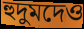
হুদুমদেও